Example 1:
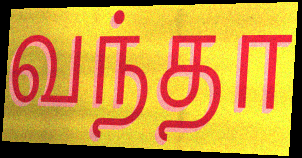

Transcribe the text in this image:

வந்தா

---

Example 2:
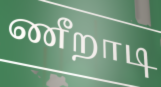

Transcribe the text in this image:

ணீறாடி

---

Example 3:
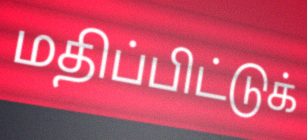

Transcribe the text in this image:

மதிப்பிட்டுக்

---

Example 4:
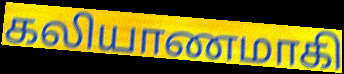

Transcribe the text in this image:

கலியாணமாகி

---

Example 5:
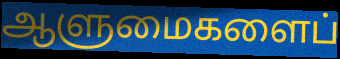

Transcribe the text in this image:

ஆளுமைகளைப்